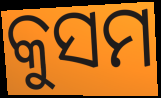
କୁସମ